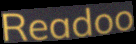
Readoo